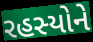
રહસ્યોને